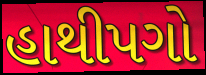
હાથીપગો